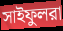
সাইফুলরা